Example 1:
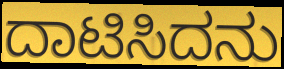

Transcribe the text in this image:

ದಾಟಿಸಿದನು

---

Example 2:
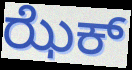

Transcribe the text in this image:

ಝೆಕ್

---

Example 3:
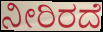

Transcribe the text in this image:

ನೀರಿರದೆ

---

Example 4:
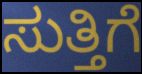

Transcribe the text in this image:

ಸುತ್ತಿಗೆ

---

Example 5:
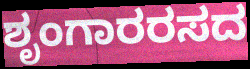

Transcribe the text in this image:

ಶೃಂಗಾರರಸದ